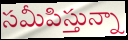
సమీపిస్తున్నా